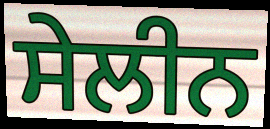
ਸੇਲੀਨ